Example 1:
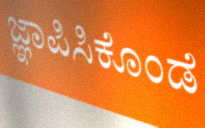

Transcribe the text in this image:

ಜ್ಞಾಪಿಸಿಕೊಂಡೆ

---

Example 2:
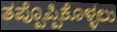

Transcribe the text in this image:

ತಪ್ಪೊಪ್ಪಿಕೊಳ್ಳಲು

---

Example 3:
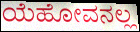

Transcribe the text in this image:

ಯೆಹೋವನಲ್ಲ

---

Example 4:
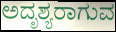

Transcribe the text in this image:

ಅದೃಶ್ಯರಾಗುವ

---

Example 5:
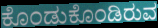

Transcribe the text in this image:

ಕೊಂಡುಕೊಂಡಿರುವ